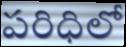
పరిధిలో